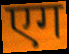
एग